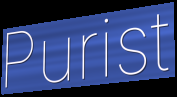
Purist